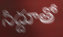
సిద్దూతో